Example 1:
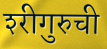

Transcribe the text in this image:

श्रीगुरुची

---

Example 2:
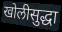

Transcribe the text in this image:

खोलीसुद्धा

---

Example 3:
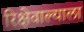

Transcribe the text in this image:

रिक्षेवाल्याला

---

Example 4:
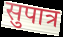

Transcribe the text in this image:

सुपात्र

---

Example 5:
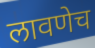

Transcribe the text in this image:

लावणेच